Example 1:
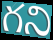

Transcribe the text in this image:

గని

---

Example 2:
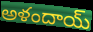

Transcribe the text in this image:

అళందాయ్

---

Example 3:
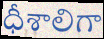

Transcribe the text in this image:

ధీశాలిగా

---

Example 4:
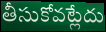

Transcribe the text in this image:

తీసుకోవట్లేదు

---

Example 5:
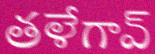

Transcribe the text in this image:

తళేగావ్